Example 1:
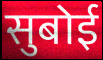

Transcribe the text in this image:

सुबोई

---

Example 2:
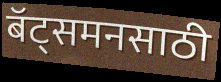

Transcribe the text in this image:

बॅट्समनसाठी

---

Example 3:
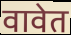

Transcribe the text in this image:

वावेत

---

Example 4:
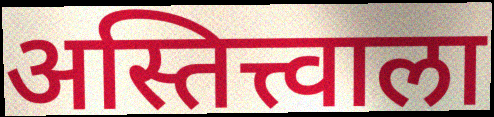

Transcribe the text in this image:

अस्तित्त्वाला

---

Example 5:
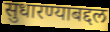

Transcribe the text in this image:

सुधारण्याबद्दल